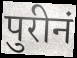
पुरीनं